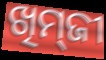
ଖିମ୍‌ଜୀ